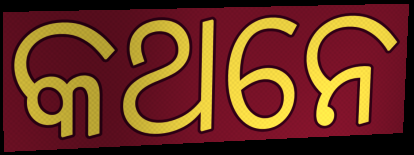
କଥନେ